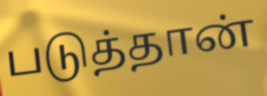
படுத்தான்